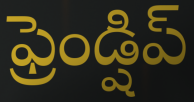
ఫ్రెండ్షిప్